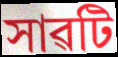
সাৱটি